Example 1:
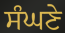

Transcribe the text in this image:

ਸੰਘਣੇ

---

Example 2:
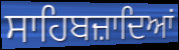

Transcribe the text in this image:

ਸਾਹਿਬਜ਼ਾਦਿਆਂ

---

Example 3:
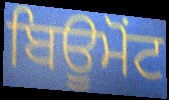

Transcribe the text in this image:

ਬਿਊਮੋਂਟ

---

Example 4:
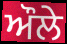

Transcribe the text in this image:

ਔਲੇ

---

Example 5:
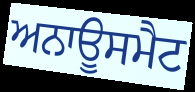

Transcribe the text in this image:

ਅਨਾਊਸਮੈਟ